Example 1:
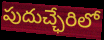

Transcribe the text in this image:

పుదుచ్ఛేరిలో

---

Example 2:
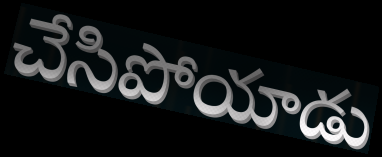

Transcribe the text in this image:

చేసిపోయాడు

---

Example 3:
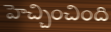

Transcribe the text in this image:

హెచ్చించింది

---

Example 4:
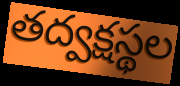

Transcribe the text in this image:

తద్వక్షస్థల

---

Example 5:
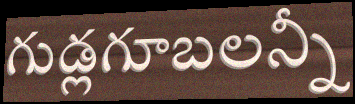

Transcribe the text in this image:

గుడ్లగూబలన్నీ